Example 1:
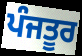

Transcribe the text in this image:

ਪੰਜਤੂਰ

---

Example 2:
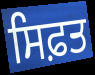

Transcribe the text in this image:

ਸਿਫ਼ਤ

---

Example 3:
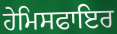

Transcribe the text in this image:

ਹੇਮਿਸਫਾਇਰ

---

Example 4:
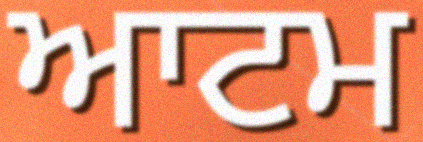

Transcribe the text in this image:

ਆਟਮ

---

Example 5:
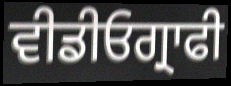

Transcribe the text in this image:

ਵੀਡੀਓਗ੍ਰਾਫੀ